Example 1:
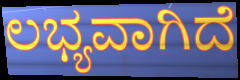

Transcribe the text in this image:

ಲಭ್ಯವಾಗಿದೆ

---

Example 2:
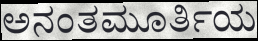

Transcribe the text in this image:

ಅನಂತಮೂರ್ತಿಯ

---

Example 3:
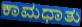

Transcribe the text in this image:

ಕಾಮಧಾತು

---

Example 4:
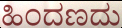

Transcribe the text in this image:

ಹಿಂದಣದು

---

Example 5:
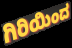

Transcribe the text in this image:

ಗಿರಿಯಿಂದ